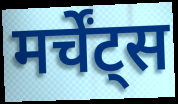
मर्चेंट्स